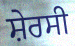
ਸ਼ੇਰਸੀ